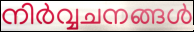
നിർവ്വചനങ്ങൾ